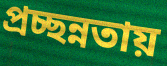
প্রচ্ছন্নতায়